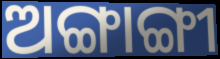
ଅଙ୍ଗାଙ୍ଗୀ